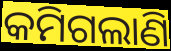
କମିଗଲାଣି